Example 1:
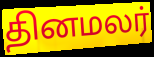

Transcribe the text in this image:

தினமலர்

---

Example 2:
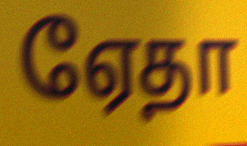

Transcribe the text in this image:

ஏேதா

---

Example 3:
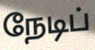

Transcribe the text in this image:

நேடிப்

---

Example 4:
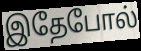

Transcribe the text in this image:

இதேபோல்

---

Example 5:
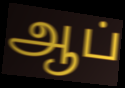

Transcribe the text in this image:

ஆப்